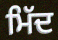
ਮਿੱਦ